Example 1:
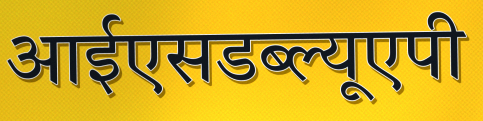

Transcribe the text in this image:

आईएसडब्ल्यूएपी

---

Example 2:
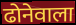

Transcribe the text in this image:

ढोनेवाला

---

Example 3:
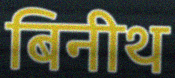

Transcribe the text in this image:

बिनीथ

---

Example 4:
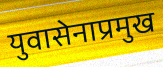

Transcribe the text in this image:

युवासेनाप्रमुख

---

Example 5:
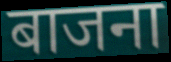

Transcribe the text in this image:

बाजना